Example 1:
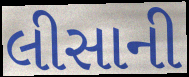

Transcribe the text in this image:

લીસાની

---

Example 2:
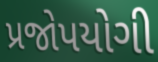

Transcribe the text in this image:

પ્રજોપયોગી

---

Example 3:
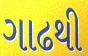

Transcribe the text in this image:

ગાઢથી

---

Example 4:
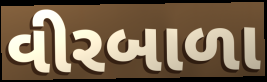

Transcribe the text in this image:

વીરબાળા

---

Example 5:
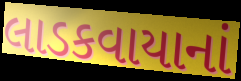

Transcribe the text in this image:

લાડકવાયાનાં